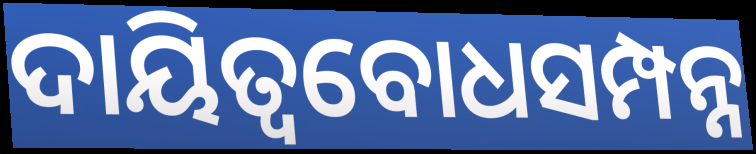
ଦାୟିତ୍ୱବୋଧସମ୍ପନ୍ନ